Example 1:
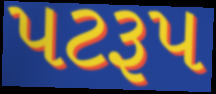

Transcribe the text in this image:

પટરૂપ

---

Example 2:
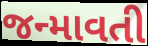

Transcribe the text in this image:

જન્માવતી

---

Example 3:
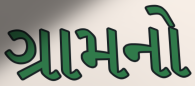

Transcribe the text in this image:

ગ્રામનો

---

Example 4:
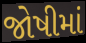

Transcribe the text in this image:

જોષીમાં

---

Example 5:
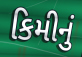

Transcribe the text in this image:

કિમીનું